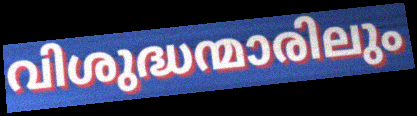
വിശുദ്ധന്മാരിലും